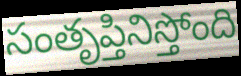
సంతృప్తినిస్తోంది